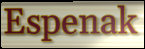
Espenak